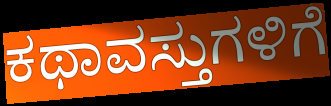
ಕಥಾವಸ್ತುಗಳಿಗೆ